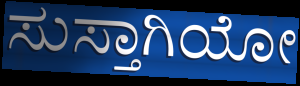
ಸುಸ್ತಾಗಿಯೋ